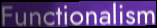
Functionalism